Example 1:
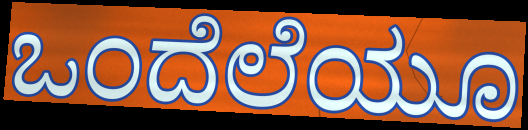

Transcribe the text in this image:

ಒಂದೆಲೆಯೂ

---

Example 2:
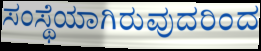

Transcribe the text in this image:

ಸಂಸ್ಥೆಯಾಗಿರುವುದರಿಂದ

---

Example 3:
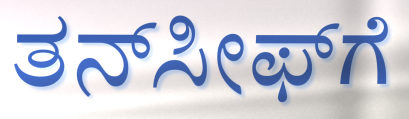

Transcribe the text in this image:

ತನ್‍ಸೀಫ್‍ಗೆ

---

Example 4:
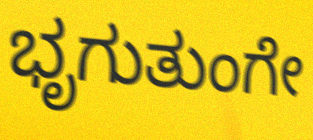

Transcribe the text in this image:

ಭೃಗುತುಂಗೇ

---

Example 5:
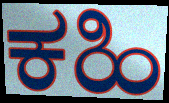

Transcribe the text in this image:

ಕಹಿ